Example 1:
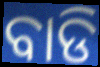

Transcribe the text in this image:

ବାଡି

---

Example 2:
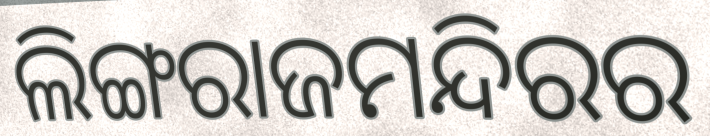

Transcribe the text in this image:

ଲିଙ୍ଗରାଜମନ୍ଦିରର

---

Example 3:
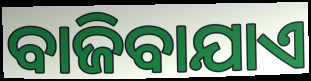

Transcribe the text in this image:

ବାଜିବାଯାଏ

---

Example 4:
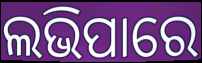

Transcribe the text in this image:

ଲଭିପାରେ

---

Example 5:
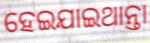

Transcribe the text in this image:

ହେଇଯାଇଥାନ୍ତା